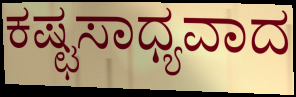
ಕಷ್ಟಸಾಧ್ಯವಾದ